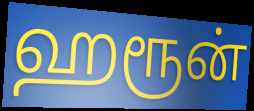
ஹரூன்